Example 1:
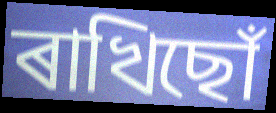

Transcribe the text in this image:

ৰাখিছোঁ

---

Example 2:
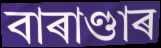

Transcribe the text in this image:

বাৰাণ্ডাৰ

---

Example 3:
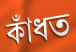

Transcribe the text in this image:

কাঁধত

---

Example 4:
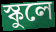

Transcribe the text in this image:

স্কুলে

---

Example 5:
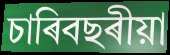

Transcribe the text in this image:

চাৰিবছৰীয়া